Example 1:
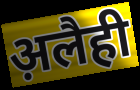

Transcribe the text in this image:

अ़लैही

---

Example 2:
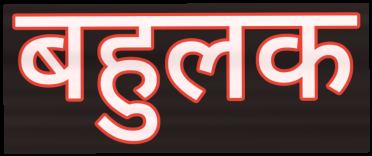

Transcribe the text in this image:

बहुलक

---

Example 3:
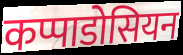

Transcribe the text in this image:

कप्पाडोसियन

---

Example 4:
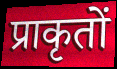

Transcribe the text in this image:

प्राकृतों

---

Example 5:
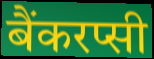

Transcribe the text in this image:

बैंकरप्सी